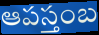
ఆపస్తంబ